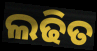
ଲଢିତ